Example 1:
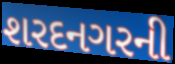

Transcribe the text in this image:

શરદનગરની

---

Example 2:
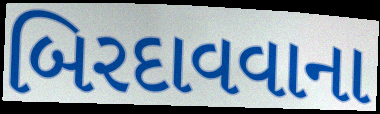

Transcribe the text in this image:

બિરદાવવાના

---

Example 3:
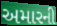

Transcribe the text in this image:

અમારની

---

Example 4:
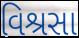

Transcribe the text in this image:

વિશ્રસા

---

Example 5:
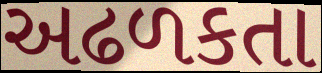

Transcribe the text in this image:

અઢળકતા